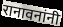
रानावनांनी